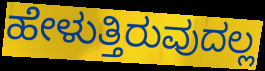
ಹೇಳುತ್ತಿರುವುದಲ್ಲ